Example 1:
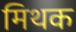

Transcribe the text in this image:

मिथक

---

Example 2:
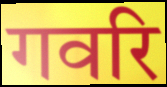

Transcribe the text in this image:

गवरि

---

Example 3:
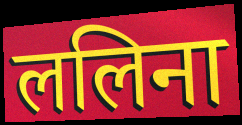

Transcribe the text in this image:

ललिना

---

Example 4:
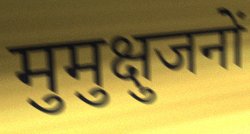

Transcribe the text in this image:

मुमुक्षुजनों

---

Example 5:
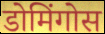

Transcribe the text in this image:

डोमिंगोस